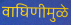
वाघिणीमुळे